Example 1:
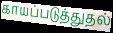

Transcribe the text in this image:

காயப்படுத்துதல்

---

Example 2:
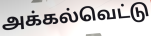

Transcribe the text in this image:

அக்கல்வெட்டு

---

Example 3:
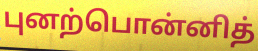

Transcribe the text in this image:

புனற்பொன்னித்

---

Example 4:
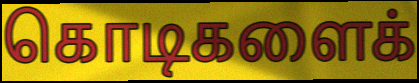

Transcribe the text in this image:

கொடிகளைக்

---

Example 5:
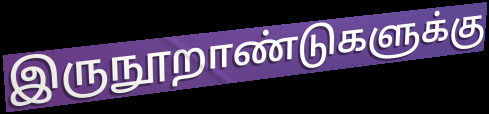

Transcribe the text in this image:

இருநூறாண்டுகளுக்கு